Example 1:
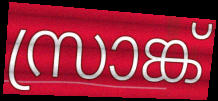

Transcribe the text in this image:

സ്രാങ്ക്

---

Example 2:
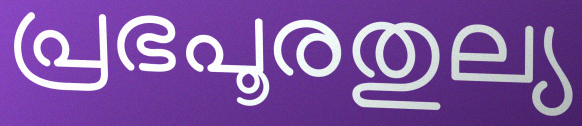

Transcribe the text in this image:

പ്രഭപൂരതുല്യ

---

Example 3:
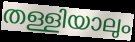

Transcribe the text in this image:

തള്ളിയാലും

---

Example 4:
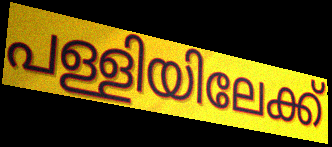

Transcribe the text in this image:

പള്ളിയിലേക്ക്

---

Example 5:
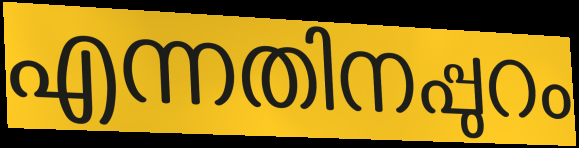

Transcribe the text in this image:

എന്നതിനപ്പുറം